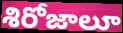
శిరోజాలూ